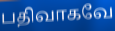
பதிவாகவே